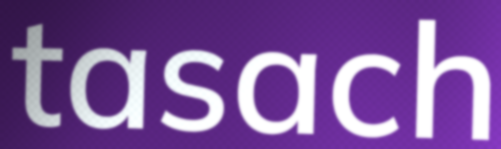
tasach